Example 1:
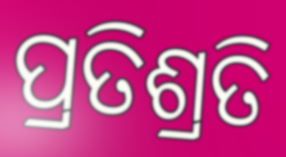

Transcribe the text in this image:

ପ୍ରତିଶ୍ରତି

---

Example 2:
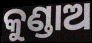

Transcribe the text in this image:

କୁଣ୍ଡାଅ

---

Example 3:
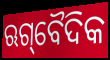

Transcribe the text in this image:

ଋଗ୍‌ବୈଦିକ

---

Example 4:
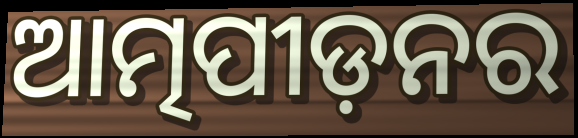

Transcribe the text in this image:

ଆତ୍ମପୀଡ଼ନର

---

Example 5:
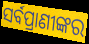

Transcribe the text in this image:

ସର୍ବପ୍ରାଣୀଙ୍କର